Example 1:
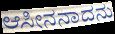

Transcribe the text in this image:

ಆಸೀನನಾದನು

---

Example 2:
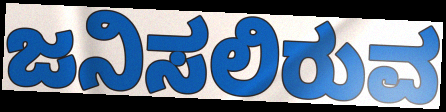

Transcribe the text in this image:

ಜನಿಸಲಿರುವ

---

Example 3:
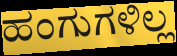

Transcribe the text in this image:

ಹಂಗುಗಳಿಲ್ಲ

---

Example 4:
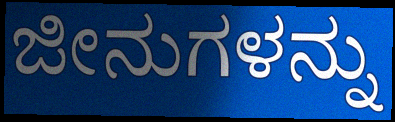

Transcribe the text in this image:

ಜೀನುಗಳನ್ನು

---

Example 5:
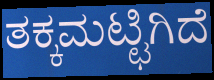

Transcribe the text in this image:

ತಕ್ಕಮಟ್ಟಿಗಿದೆ